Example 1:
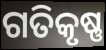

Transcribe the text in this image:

ଗତିକୃଷ୍ଣ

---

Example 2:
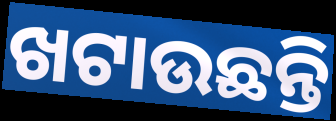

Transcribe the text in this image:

ଖଟାଉଛନ୍ତି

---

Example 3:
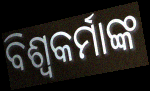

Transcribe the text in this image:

ବିଶ୍ୱକର୍ମାଙ୍କ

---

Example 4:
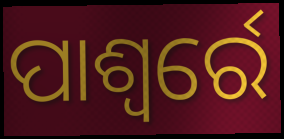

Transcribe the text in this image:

ପାଶ୍ୱର୍ରେ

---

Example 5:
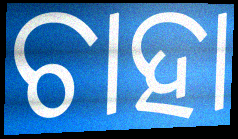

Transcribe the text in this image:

ଚାହା